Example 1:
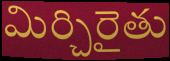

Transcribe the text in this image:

మిర్చిరైతు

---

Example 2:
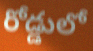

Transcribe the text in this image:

రోడ్డులో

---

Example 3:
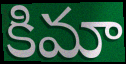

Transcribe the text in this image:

కిమా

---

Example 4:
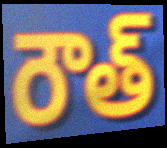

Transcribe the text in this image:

రౌత్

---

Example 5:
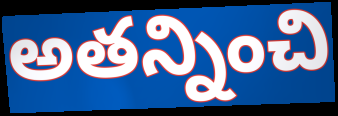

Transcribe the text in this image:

అతన్నించి